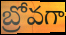
బ్రోవగా